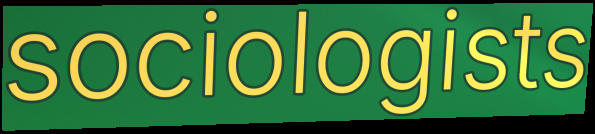
sociologists